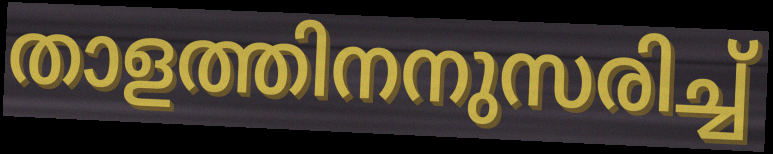
താളത്തിനനുസരിച്ച്